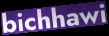
bichhawi